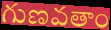
గుణవతాం